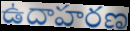
ఉదాహరణ